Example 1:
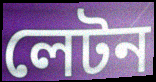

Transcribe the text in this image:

লেটন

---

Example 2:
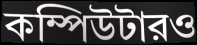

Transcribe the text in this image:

কম্পিউটারও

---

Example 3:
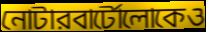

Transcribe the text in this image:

নোটারবার্টোলোকেও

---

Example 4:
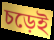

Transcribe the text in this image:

চড়েই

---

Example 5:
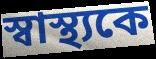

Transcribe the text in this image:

স্বাস্থ্যকে